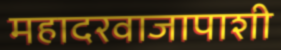
महादरवाजापाशी